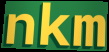
nkm